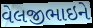
વેલજીભાઇને